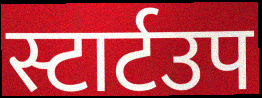
स्टार्टउप